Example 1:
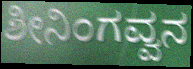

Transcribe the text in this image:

ಶೀನಿಂಗವ್ವನ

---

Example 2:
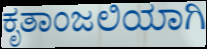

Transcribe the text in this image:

ಕೃತಾಂಜಲಿಯಾಗಿ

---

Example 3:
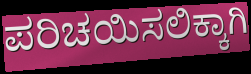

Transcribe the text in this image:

ಪರಿಚಯಿಸಲಿಕ್ಕಾಗಿ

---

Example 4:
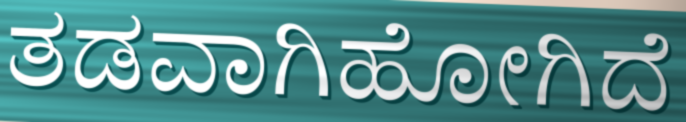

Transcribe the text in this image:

ತಡವಾಗಿಹೋಗಿದೆ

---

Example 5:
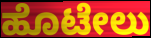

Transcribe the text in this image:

ಹೊಟೇಲು